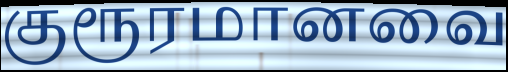
குரூரமானவை